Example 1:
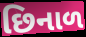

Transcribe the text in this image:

છિનાળ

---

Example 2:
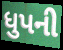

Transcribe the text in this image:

ધુપની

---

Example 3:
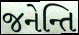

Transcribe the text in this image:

જનેન્તિ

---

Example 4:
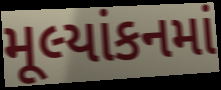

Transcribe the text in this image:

મૂલ્યાંકનમાં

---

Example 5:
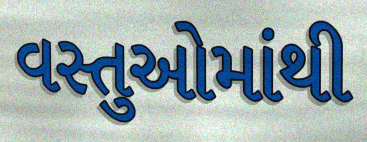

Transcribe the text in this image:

વસ્તુઓમાંથી